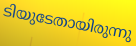
ടിയുടേതായിരുന്നു